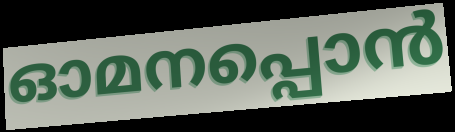
ഓമനപ്പൊൻ